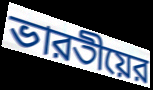
ভারতীয়ের